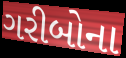
ગરીબોના